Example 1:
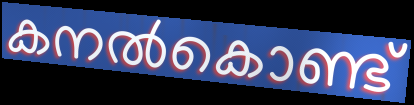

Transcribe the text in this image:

കനൽകൊണ്ട്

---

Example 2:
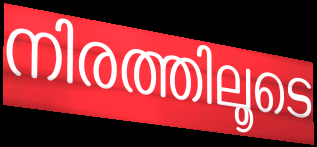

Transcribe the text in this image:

നിരത്തിലൂടെ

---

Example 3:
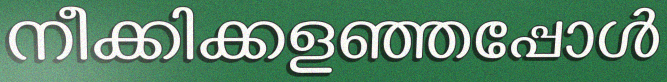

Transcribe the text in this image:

നീക്കിക്കളഞ്ഞപ്പോൾ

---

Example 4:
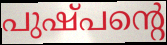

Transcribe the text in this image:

പുഷ്പന്റെ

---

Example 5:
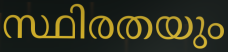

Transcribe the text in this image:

സ്ഥിരതയും